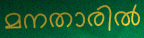
മനതാരിൽ